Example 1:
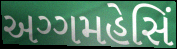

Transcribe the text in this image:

અગ્ગમહેસિં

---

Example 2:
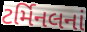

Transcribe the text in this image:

ટર્મિનલનાં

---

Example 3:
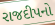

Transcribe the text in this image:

રાજદીપનો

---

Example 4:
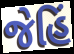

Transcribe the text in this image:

જેહિં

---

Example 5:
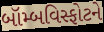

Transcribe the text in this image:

બૉમ્બવિસ્ફોટને